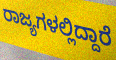
ರಾಜ್ಯಗಳಲ್ಲಿದ್ದಾರೆ